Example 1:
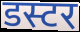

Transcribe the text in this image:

डस्टर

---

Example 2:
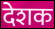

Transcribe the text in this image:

देशक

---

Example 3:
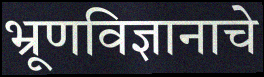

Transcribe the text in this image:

भ्रूणविज्ञानाचे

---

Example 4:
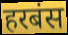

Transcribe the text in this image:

हरबंस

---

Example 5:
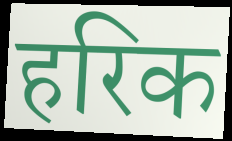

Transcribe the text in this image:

हरिक